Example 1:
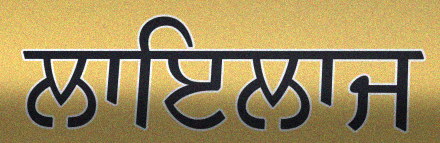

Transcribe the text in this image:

ਲਾਇਲਾਜ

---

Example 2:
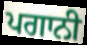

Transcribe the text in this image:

ਪਗਾਨੀ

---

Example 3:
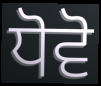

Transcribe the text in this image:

ਧੋਵੋ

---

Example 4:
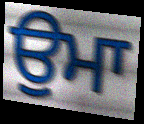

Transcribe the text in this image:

ਉਮਾ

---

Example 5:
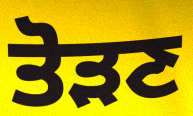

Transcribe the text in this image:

ਤੋੜਣ